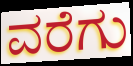
ವರೆಗು